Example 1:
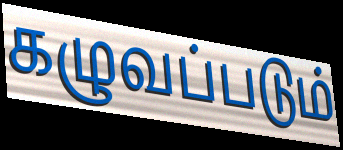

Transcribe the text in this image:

கழுவப்படும்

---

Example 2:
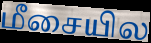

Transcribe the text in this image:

மீசையில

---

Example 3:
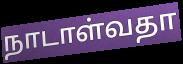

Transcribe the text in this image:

நாடாள்வதா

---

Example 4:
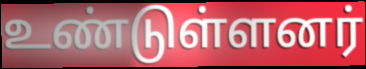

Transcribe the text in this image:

உண்டுள்ளனர்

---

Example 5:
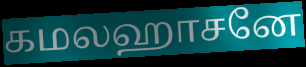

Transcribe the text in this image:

கமலஹாசனே